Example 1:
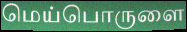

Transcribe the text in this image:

மெய்பொருளை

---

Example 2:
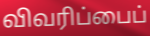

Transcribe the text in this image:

விவரிப்பைப்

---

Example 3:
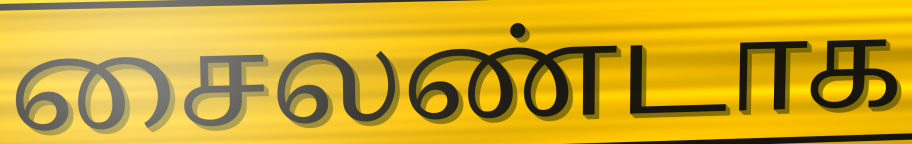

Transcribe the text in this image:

சைலண்டாக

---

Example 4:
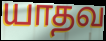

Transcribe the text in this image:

யாதவ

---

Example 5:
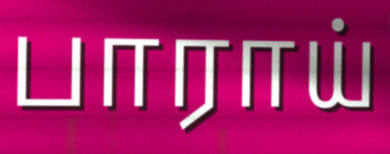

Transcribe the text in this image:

பாராய்